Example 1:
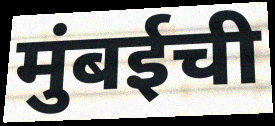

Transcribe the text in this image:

मुंबईची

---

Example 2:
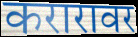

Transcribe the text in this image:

करारावर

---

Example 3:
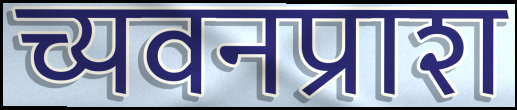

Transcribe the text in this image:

च्यवनप्राश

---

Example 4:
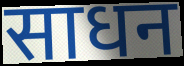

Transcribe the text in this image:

साधन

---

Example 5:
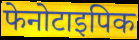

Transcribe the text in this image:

फेनोटाइपिक